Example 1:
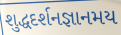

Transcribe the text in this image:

શુદ્ધદર્શનજ્ઞાનમય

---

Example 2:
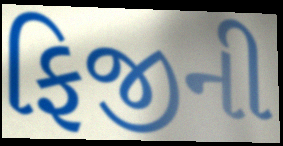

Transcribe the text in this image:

ફિજીની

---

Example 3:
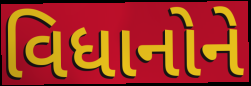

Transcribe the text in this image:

વિધાનોને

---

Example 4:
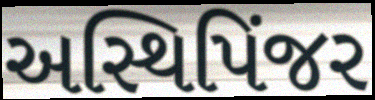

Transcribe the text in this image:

અસ્થિપિંજર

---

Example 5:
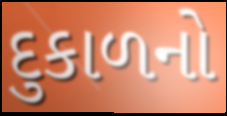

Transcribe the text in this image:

દુકાળનો